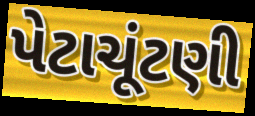
પેટાચૂંટણી